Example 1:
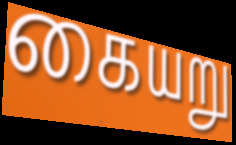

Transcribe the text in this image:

கையறு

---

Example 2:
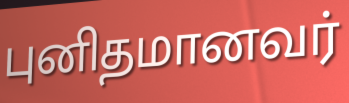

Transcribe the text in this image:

புனிதமானவர்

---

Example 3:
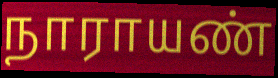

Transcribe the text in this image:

நாராயண்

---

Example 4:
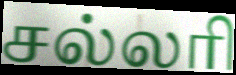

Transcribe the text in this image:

சல்லரி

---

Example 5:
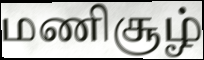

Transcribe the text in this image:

மணிசூழ்